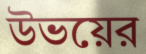
উভয়ের